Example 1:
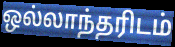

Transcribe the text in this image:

ஒல்லாந்தரிடம்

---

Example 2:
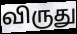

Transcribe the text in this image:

விருது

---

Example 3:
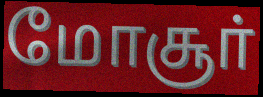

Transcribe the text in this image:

மோசூர்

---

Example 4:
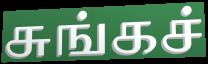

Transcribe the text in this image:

சுங்கச்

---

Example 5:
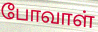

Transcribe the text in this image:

போவாள்